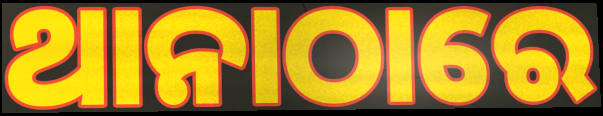
ଥାନାଠାରେ